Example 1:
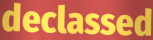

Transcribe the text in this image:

declassed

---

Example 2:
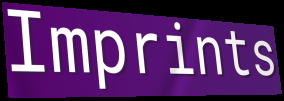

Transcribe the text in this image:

Imprints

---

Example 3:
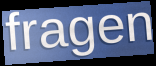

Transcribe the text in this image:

fragen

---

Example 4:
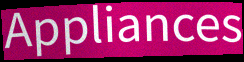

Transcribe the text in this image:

Appliances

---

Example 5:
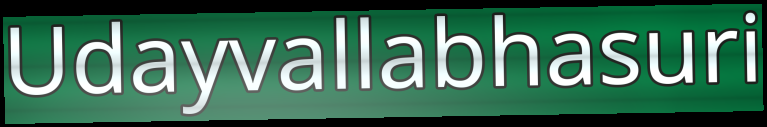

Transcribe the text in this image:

Udayvallabhasuri